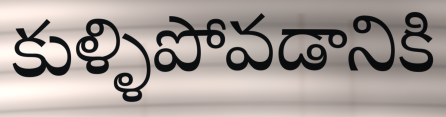
కుళ్ళిపోవడానికి